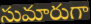
సుమారుగా